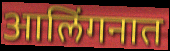
आलिंगनात